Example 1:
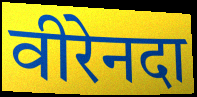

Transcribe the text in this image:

वीरेनदा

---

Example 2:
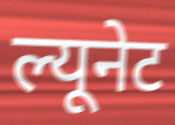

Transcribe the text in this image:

ल्यूनेट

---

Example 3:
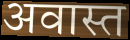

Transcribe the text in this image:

अवास्त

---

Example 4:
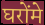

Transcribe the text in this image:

घरोंमे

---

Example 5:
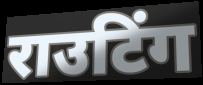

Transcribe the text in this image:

राउटिंग